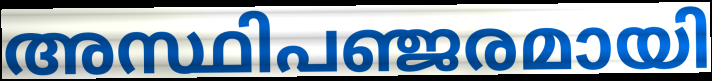
അസ്ഥിപഞ്ജരമായി